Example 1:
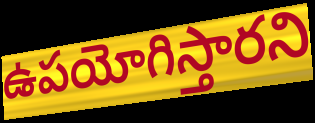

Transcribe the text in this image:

ఉపయోగిస్తారని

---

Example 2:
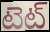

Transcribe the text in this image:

టెట్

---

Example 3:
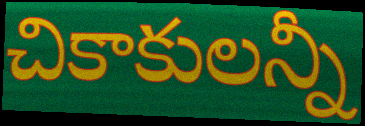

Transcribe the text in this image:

చికాకులన్నీ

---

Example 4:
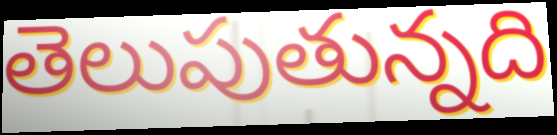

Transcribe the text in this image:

తెలుపుతున్నది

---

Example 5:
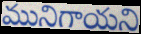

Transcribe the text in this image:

మునిగాయని